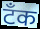
टॅंक